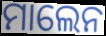
ମାଲେନ